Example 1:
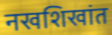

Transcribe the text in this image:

नखशिखांत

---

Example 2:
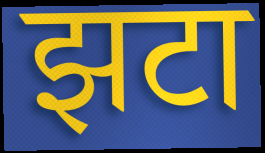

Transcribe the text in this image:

झटा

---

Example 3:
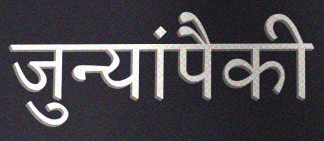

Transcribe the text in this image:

जुन्यांपैकी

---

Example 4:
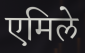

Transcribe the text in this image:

एमिले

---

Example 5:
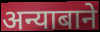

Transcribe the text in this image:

अन्याबाने